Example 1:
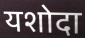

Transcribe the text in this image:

यशोदा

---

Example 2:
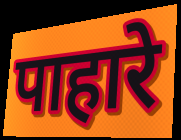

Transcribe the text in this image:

पाहारे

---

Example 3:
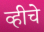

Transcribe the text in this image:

व्हीचे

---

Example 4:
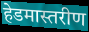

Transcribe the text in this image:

हेडमास्तरीण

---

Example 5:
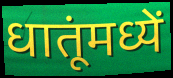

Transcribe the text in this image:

धातूंमध्यें